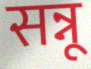
सन्नू